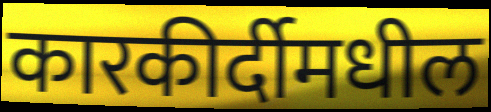
कारकीर्दीमधील